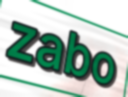
zabo